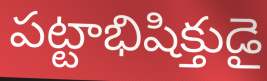
పట్టాభిషిక్తుడై